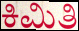
ಕಿಮಿತಿ